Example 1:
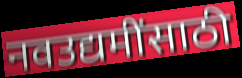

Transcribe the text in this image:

नवउद्यमींसाठी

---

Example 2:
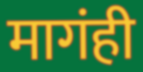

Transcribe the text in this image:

मागंही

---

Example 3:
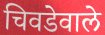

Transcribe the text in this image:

चिवडेवाले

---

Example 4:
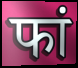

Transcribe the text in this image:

फां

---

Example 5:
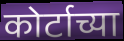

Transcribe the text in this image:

कोर्टाच्या